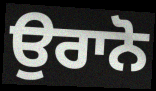
ਉਰਾਨੋ